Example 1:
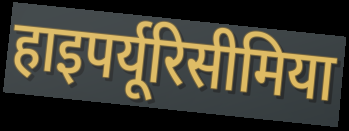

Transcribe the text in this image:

हाइपर्यूरिसीमिया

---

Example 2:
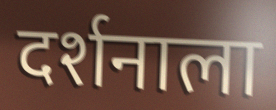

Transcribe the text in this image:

दर्शनाला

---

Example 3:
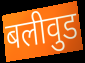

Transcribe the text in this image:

बलीवुड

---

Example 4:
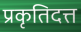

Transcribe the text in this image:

प्रकृतिदत्त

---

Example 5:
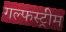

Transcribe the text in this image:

गल्फस्ट्रीम